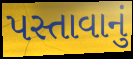
પસ્તાવાનું